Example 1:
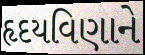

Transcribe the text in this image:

હૃદયવિણાને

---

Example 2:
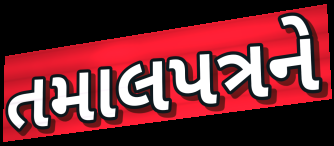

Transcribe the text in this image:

તમાલપત્રને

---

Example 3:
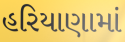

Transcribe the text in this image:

હરિયાણામાં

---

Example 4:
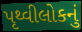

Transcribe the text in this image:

પૃથ્વીલોકનું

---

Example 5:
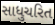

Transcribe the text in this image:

સાધુચરિત